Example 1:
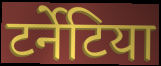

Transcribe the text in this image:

टर्नेटिया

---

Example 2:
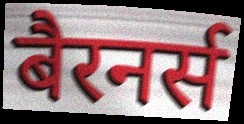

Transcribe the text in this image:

बैरनर्स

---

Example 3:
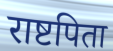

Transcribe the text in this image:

राष्टपिता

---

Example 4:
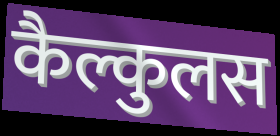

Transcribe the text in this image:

कैल्कुलस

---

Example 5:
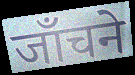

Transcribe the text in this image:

जाँचने